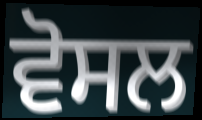
ਵੋਸਲ